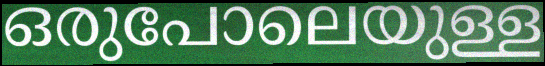
ഒരുപോലെയുള്ള